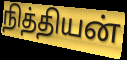
நித்தியன்